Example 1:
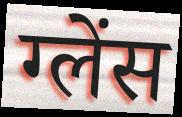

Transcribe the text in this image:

ग्लेंस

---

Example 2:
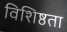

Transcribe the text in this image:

विशिष्ठता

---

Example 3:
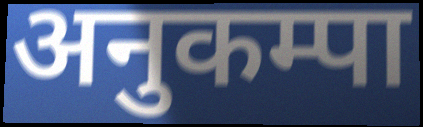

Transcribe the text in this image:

अनुकम्पा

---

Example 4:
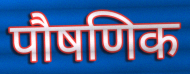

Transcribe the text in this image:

पौषणिक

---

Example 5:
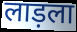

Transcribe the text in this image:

लाड़ला